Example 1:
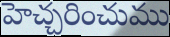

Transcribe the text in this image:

హెచ్చరించుము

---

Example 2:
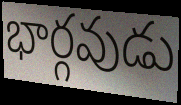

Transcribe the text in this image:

భార్గవుడు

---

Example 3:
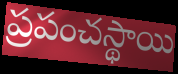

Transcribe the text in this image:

ప్రపంచస్థాయి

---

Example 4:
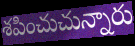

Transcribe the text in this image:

శపించుచున్నారు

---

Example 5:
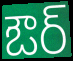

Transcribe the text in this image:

ఔర్